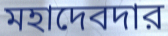
মহাদেবদার